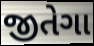
જીતેગા